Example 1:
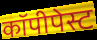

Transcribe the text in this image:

कॉपीपेस्ट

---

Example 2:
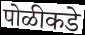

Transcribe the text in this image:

पोळीकडे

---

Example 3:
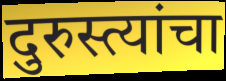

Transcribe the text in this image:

दुरुस्त्यांचा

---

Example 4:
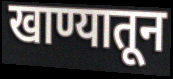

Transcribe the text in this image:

खाण्यातून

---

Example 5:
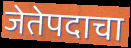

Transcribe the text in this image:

जेतेपदाचा